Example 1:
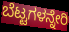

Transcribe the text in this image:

ಬೆಟ್ಟಗಳನ್ನೇರಿ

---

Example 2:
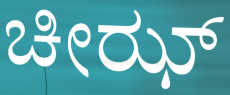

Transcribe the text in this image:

ಚೀಝ್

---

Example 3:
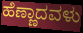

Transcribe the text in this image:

ಹೆಣ್ಣಾದವಳು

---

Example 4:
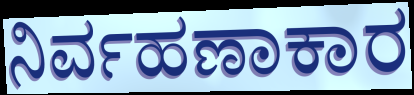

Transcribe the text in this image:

ನಿರ್ವಹಣಾಕಾರ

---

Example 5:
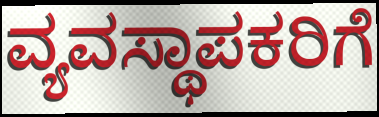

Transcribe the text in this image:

ವ್ಯವಸ್ಥಾಪಕರಿಗೆ